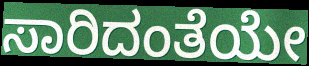
ಸಾರಿದಂತೆಯೇ